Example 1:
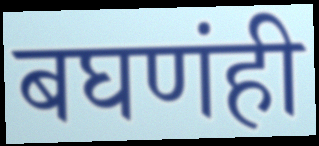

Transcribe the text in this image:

बघणंही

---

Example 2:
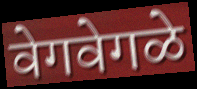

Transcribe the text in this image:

वेगवेगळे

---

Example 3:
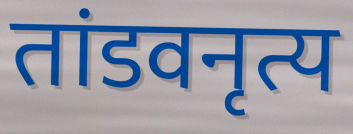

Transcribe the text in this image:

तांडवनृत्य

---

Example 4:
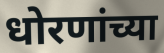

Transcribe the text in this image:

धोरणांच्या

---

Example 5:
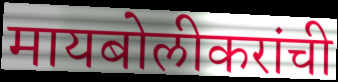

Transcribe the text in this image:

मायबोलीकरांची